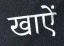
खाऐं